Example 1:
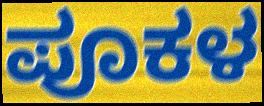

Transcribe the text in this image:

ಪೂಕಳ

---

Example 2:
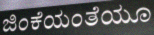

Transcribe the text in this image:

ಜಿಂಕೆಯಂತೆಯೂ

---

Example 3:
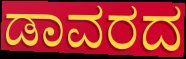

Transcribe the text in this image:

ಡಾವರದ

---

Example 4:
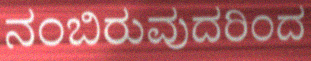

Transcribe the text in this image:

ನಂಬಿರುವುದರಿಂದ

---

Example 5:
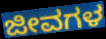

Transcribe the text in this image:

ಜೀವಗಳ